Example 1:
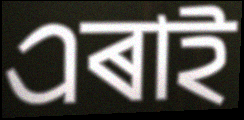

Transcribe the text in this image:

এৰাই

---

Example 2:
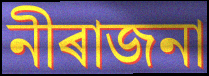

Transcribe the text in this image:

নীৰাজনা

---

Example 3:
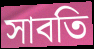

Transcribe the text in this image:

সাবতি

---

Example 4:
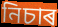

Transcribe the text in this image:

নিচাৰ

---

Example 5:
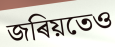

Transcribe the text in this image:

জৰিয়তেও